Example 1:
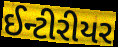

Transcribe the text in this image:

ઈન્ટીરીયર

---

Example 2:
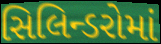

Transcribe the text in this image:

સિલિન્ડરોમાં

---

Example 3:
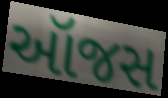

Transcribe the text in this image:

ઑજસ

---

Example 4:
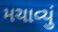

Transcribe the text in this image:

મચાવ્યું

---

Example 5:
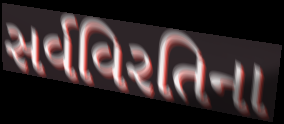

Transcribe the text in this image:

સર્વવિરતિના